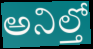
అనిల్తో